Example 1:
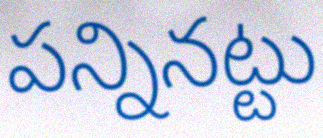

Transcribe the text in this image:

పన్నినట్టు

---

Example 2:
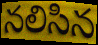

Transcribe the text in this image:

నలిసిన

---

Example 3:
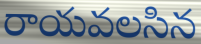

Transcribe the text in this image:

రాయవలసిన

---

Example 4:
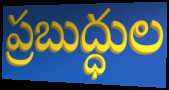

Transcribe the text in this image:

ప్రబుద్ధుల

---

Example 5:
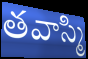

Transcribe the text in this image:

తవాస్మి